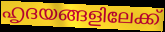
ഹൃദയങ്ങളിലേക്ക്